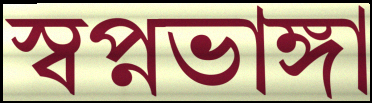
স্বপ্নভাঙ্গা